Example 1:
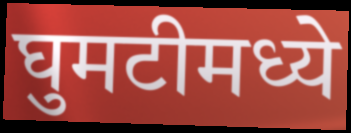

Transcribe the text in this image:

घुमटीमध्ये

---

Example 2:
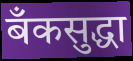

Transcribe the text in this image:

बँकसुद्धा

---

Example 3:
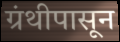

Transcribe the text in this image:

ग्रंथीपासून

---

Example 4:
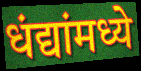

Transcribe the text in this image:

धंद्यांमध्ये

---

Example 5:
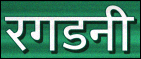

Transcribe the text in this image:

रगडनी